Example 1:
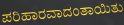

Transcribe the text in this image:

ಪರಿಹಾರವಾದಂತಾಯಿತು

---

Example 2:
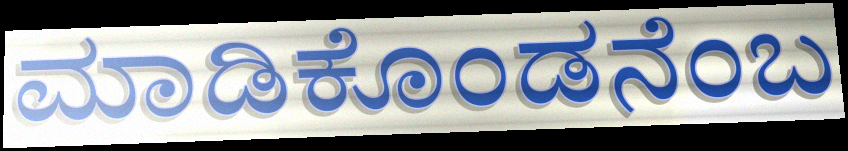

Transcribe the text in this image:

ಮಾಡಿಕೊಂಡನೆಂಬ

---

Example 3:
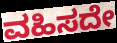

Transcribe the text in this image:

ವಹಿಸದೇ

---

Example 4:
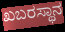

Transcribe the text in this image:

ಖಬರಸ್ಥಾನ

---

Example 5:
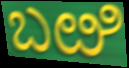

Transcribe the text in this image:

ಬೞಿ